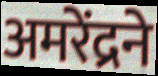
अमरेंद्रने